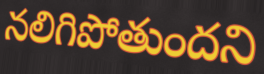
నలిగిపోతుందని